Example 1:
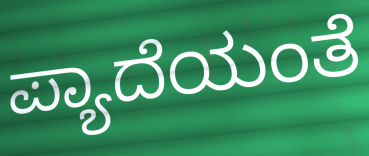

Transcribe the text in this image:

ಪ್ಯಾದೆಯಂತೆ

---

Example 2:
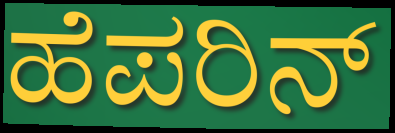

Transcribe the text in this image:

ಹೆಪರಿನ್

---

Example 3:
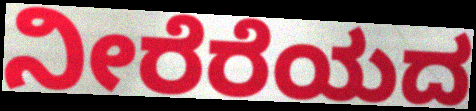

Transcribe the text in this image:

ನೀರೆರೆಯದ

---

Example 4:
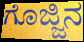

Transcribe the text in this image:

ಗೊಜ್ಜಿನ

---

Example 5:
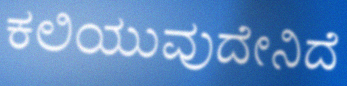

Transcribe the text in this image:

ಕಲಿಯುವುದೇನಿದೆ